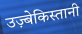
उज़्बेकिस्तानी